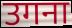
उगना